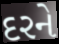
દરને